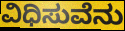
ವಿಧಿಸುವೆನು